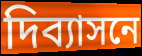
দিব্যাসনে